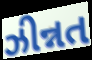
ઝીન્નત